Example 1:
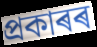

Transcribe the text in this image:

প্ৰকাৰৰ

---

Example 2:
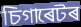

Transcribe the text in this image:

চিগাৰেটৰ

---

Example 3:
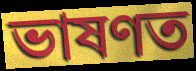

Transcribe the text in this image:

ভাষণত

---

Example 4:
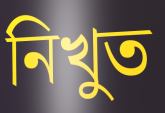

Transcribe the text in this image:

নিখুত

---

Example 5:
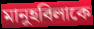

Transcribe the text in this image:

মানুহবিলাকে